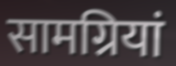
सामग्रियां